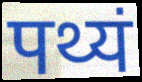
पथ्यं